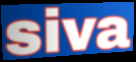
siva